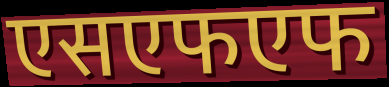
एसएफएफ